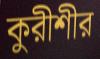
কুরীশীর